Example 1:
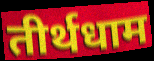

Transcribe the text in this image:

तीर्थधाम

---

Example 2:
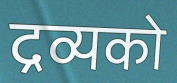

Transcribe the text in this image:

द्रव्यको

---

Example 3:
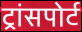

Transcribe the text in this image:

ट्रांसपोर्ट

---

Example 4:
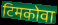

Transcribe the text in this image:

टिमकोवा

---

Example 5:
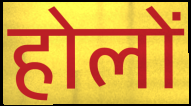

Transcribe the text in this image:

होलों